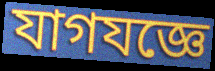
যাগযজ্ঞে